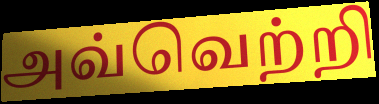
அவ்வெற்றி